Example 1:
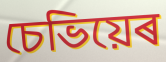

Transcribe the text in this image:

চেভিয়েৰ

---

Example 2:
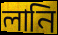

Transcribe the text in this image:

লানি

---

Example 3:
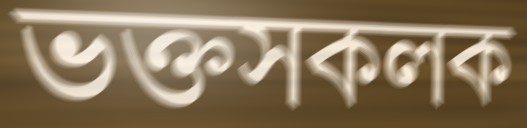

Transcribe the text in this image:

ভক্তসকলক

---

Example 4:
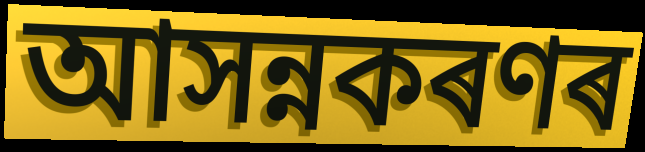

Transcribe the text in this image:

আসন্নকৰণৰ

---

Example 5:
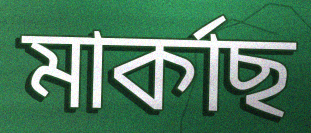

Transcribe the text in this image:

মাৰ্কাছ